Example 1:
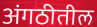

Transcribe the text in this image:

अंगठीतील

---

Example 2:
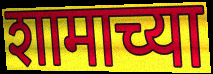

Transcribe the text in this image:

शामाच्या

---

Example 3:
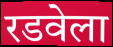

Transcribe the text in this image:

रडवेला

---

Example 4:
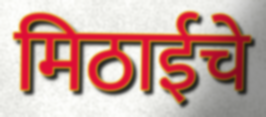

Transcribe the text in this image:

मिठाईचे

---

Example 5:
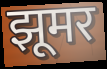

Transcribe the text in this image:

झूमर